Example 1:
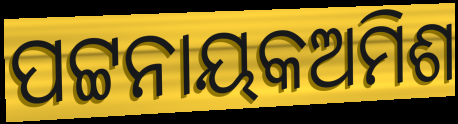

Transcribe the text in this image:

ପଟ୍ଟନାୟକଅମିଶ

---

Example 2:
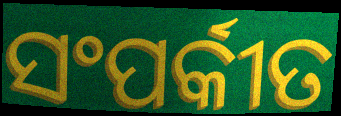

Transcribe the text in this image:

ସଂପର୍କୀତ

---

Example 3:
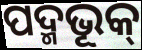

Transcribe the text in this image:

ପଦ୍ମଭୂକ୍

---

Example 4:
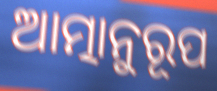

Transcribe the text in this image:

ଆତ୍ମାନୁରୂପ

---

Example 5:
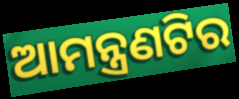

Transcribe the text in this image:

ଆମନ୍ତ୍ରଣଟିର